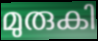
മുരുകി